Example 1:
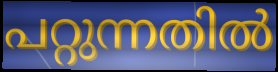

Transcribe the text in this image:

പറ്റുന്നതിൽ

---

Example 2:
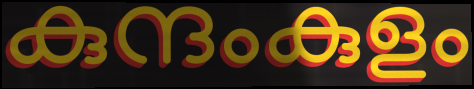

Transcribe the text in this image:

കുന്ദംകുളം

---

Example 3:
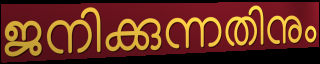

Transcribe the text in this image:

ജനിക്കുന്നതിനും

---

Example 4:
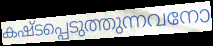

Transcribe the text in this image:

കഷ്ടപ്പെടുത്തുന്നവനോ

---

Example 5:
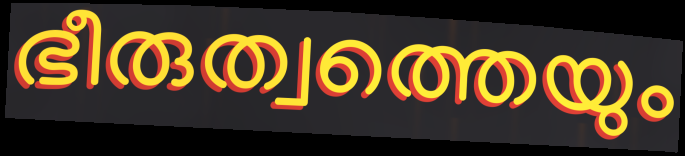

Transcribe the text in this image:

ഭീരുത്വത്തെയും